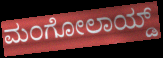
ಮಂಗೋಲಾಯ್ಡ್